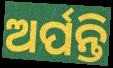
ଅର୍ପନ୍ତି